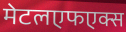
मेटलएफएक्स